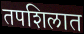
तपशिलात